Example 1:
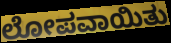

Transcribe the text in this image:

ಲೋಪವಾಯಿತು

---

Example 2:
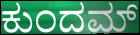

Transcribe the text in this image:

ಕುಂದಮ್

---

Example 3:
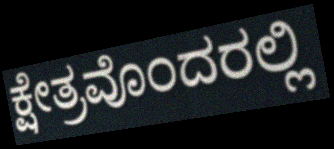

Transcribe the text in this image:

ಕ್ಷೇತ್ರವೊಂದರಲ್ಲಿ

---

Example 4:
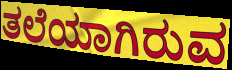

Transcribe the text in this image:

ತಲೆಯಾಗಿರುವ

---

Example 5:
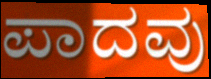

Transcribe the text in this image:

ಪಾದವು